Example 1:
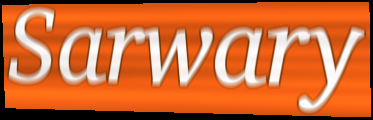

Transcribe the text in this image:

Sarwary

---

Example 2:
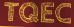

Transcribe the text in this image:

TQEC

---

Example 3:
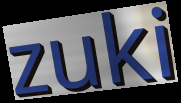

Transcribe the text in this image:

zuki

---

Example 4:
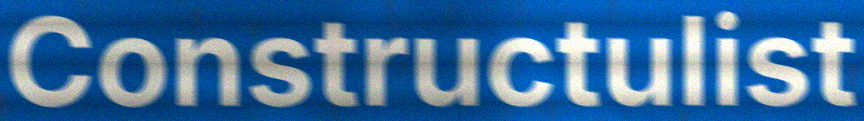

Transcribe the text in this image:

Constructulist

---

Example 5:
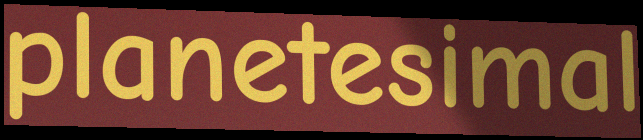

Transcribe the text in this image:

planetesimal